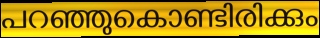
പറഞ്ഞുകൊണ്ടിരിക്കും